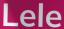
Lele